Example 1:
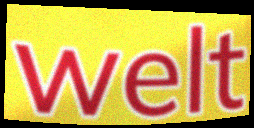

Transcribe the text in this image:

welt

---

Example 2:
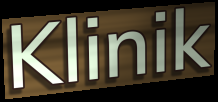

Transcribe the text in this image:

Klinik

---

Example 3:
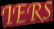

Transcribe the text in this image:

IERS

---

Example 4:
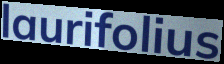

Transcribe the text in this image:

laurifolius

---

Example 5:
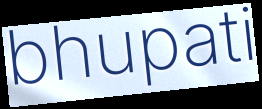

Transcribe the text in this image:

bhupati